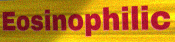
Eosinophilic